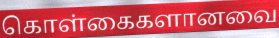
கொள்கைகளானவை